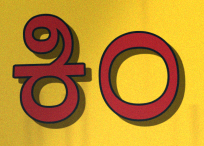
ಕಿಂ